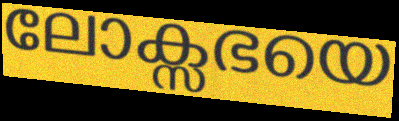
ലോക്സഭയെ